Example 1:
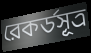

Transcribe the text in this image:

রেকর্ডসূত্র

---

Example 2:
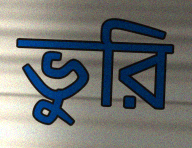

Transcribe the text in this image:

ভুরি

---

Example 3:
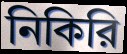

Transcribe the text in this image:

নিকিরি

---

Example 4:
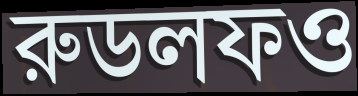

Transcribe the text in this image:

রুডলফও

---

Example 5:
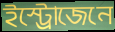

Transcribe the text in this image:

ইস্ট্রোজেনে